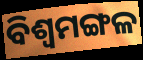
ବିଶ୍ୱମଙ୍ଗଳ